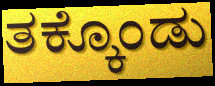
ತಕ್ಕೊಂಡು